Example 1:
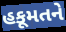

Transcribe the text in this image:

હકૂમતને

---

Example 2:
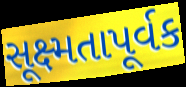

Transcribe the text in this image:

સૂક્ષ્મતાપૂર્વક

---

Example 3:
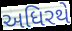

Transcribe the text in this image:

અધિરથે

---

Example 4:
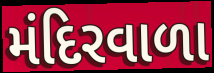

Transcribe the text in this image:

મંદિરવાળા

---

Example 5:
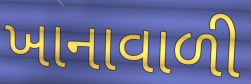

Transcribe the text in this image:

ખાનાવાળી